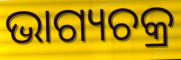
ଭାଗ୍ୟଚକ୍ର